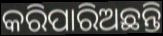
କରିପାରିଅଛନ୍ତି